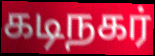
கடிநகர்